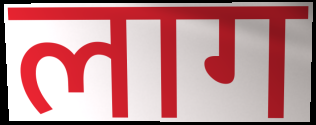
लाग